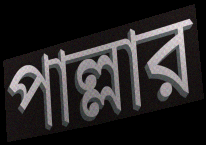
পাল্লার